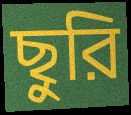
ছুরি